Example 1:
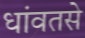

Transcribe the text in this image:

धांवतसे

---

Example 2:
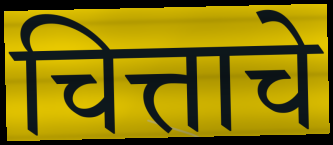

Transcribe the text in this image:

चित्ताचे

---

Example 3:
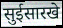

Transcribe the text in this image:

सुईसारखे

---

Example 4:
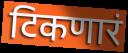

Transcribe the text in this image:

टिकणारं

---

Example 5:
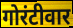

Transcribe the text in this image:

गोरंटीवार